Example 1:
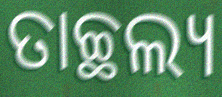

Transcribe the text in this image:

ତାଚ୍ଛଲ୍ଯ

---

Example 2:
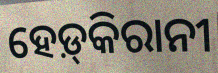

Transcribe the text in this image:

ହେଡ଼୍‌କିରାନୀ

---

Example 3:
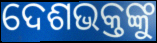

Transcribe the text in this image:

ଦେଶଭକ୍ତଙ୍କୁ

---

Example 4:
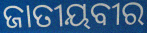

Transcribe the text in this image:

ଜାତୀୟବୀର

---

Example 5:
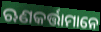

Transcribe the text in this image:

ଋଣକର୍ତ୍ତାମାନେ